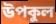
উপকুল